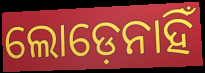
ଲୋଡ଼େନାହିଁ